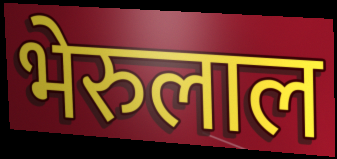
भेरुलाल